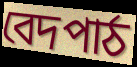
বেদপাঠ